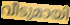
വീടുമായി